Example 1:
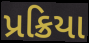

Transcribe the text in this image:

પ્રક્રિયા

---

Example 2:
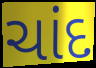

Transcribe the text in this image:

ચાંદ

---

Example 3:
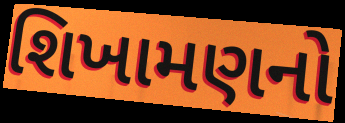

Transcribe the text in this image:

શિખામણનો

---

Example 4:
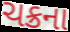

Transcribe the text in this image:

ચક્રના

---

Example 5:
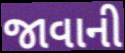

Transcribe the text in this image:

જાવાની